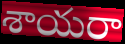
శాయరా